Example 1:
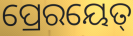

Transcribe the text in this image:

ପ୍ରେରୟେତ୍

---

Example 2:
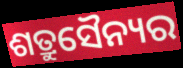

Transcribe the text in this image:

ଶତ୍ରୁସୈନ୍ୟର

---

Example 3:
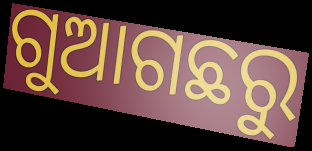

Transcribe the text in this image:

ଗୁଆଗଛରୁ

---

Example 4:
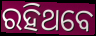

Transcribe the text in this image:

ରହିଥବେ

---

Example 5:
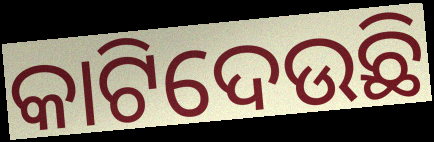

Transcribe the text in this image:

କାଟିଦେଉଛି